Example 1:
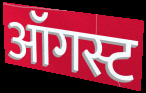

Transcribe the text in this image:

ऑगस्ट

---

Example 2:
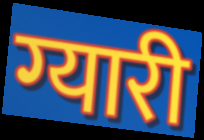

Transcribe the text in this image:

ग्यारी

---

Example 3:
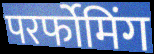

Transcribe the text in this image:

परर्फोमिंग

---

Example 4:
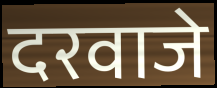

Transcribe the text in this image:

दरवाजे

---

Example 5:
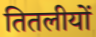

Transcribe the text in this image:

तितलीयों